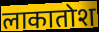
लाकातोश